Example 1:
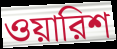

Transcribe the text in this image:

ওয়ারিশ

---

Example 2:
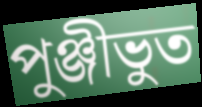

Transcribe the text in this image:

পুঞ্জীভুত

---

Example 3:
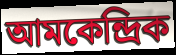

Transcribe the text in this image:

আমকেন্দ্রিক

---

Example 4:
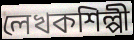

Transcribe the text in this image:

লেখকশিল্পী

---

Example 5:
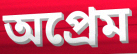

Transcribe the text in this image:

অপ্রেম